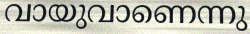
വായുവാണെന്നു